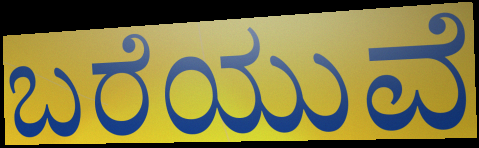
ಬರೆಯುವೆ